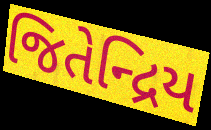
જિતેન્દ્રિય